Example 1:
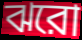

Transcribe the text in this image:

ঝরো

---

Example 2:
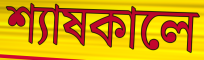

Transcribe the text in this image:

শ্যাষকালে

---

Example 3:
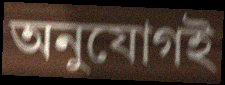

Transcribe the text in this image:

অনুযোগই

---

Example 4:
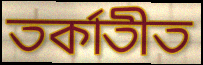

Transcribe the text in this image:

তর্কাতীত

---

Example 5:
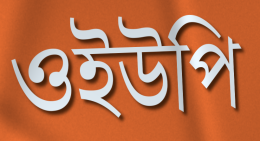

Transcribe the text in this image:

ওইউপি